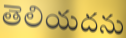
తెలియదను